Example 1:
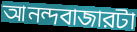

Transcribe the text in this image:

আনন্দবাজারটা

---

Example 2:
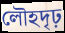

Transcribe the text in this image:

লৌহদৃঢ়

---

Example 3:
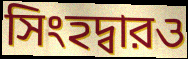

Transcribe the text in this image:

সিংহদ্বারও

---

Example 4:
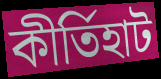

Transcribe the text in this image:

কীর্তিহাট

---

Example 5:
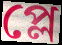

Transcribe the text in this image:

প্লে